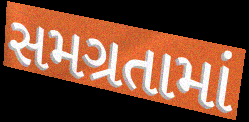
સમગ્રતામાં